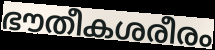
ഭൗതീകശരീരം